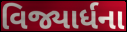
વિજ્યાર્ધના